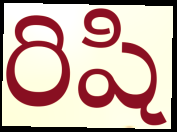
రిషి